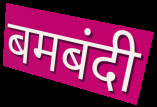
बमबंदी